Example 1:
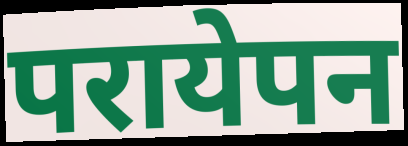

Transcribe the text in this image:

परायेपन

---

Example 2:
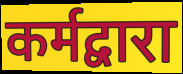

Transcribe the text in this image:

कर्मद्वारा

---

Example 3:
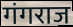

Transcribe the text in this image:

गंगराज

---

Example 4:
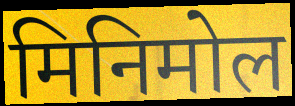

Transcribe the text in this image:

मिनिमोल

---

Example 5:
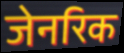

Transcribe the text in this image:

जेनरिक